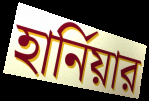
হার্নিয়ার